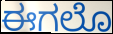
ಈಗಲೊ